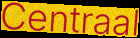
Centraal